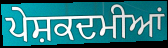
ਪੇਸ਼ਕਦਮੀਆਂ